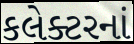
કલેક્ટરનાં